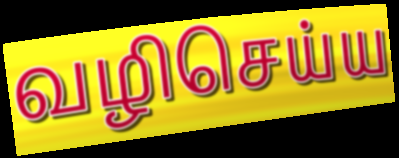
வழிசெய்ய